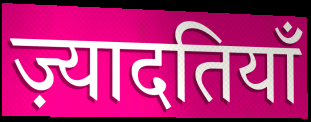
ज़्यादतियाँ